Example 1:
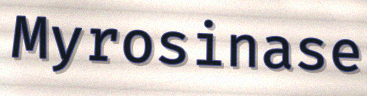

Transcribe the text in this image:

Myrosinase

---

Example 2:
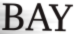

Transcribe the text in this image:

BAY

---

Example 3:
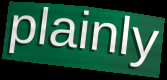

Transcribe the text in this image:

plainly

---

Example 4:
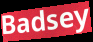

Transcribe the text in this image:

Badsey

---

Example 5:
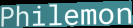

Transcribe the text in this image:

Philemon